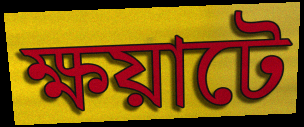
ক্ষয়াটে